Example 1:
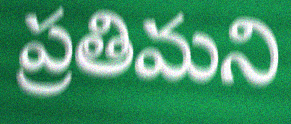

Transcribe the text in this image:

ప్రతిమని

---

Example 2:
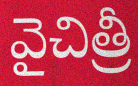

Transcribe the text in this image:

వైచిత్రీ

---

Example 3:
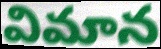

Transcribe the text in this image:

విమాన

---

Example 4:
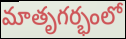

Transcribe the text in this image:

మాతృగర్భంలో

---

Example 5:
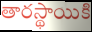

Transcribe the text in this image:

తారస్థాయికి